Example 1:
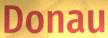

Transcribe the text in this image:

Donau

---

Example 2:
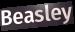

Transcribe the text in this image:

Beasley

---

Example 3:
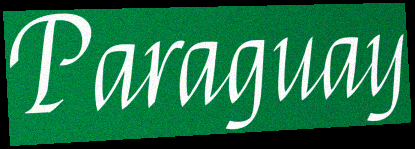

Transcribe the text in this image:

Paraguay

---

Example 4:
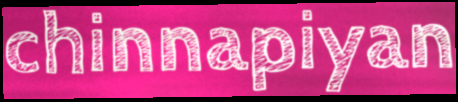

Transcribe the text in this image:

chinnapiyan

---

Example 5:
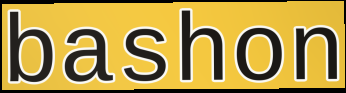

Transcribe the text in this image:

bashon